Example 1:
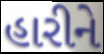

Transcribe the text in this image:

હારીને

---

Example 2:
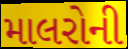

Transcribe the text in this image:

માલરોની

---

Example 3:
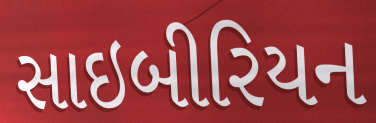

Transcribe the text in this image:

સાઇબીરિયન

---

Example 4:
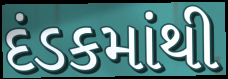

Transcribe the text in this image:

દંડકમાંથી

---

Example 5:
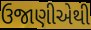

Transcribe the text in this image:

ઉજાણીએથી